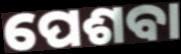
ପେଶବା